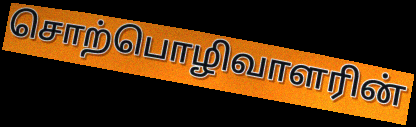
சொற்பொழிவாளரின்